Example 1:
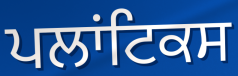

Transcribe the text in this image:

ਪਲਾਂਟਿਕਸ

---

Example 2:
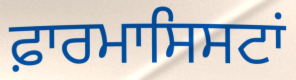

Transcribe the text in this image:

ਫ਼ਾਰਮਾਸਿਸਟਾਂ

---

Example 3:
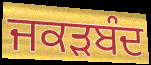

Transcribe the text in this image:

ਜਕੜਬੰਦ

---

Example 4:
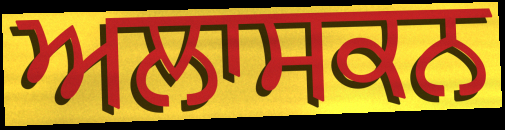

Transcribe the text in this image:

ਅਲਾਸਕਨ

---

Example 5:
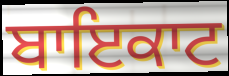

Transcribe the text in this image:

ਬਾਇਕਾਟ